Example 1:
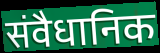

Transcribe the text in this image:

संवैधानिक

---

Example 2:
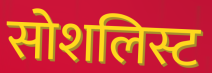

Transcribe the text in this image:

सोशलिस्ट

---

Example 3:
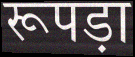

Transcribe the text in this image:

रूपड़ा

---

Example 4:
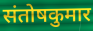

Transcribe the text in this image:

संतोषकुमार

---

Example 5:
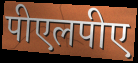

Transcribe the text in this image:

पीएलपीए